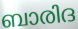
ബാരിദ